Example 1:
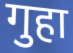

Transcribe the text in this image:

गुहा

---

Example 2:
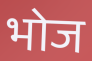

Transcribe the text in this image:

भोज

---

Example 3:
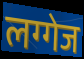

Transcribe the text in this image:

लग्गेज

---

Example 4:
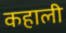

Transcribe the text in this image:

कहाली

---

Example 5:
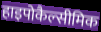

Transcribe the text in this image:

हाइपोकैल्सीमिक